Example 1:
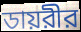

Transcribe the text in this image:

ডায়রীর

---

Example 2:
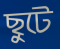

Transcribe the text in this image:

ছুটে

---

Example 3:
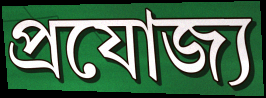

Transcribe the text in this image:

প্রযোজ্য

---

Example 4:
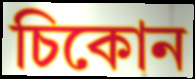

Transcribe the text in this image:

চিকোন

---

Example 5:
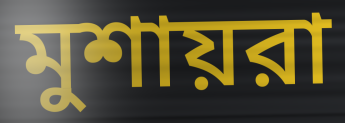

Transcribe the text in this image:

মুশায়রা